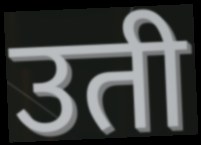
उती